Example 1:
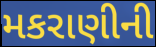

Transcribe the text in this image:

મકરાણીની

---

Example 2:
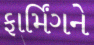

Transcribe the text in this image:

ફાર્મિંગને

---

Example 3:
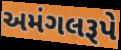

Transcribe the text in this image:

અમંગલરૂપે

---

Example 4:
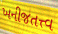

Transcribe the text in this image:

ખનીજતત્ત્વ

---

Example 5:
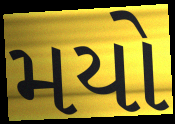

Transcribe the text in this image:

મયો